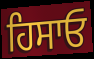
ਹਿਸਾਓ